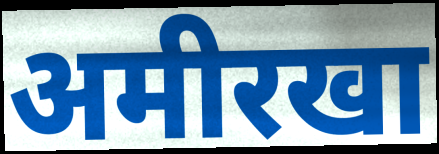
अमीरखा